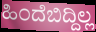
ಹಿಂದೆಬಿದ್ದಿಲ್ಲ